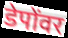
डेपोंवर